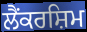
ਲੈਂਕਰਸ਼ਿਮ